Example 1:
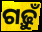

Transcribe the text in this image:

ଗଢ଼ୁଁ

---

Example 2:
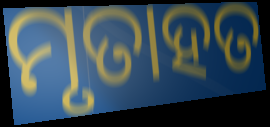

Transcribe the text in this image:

ମୃତାହତ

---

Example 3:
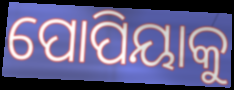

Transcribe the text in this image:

ପୋପିୟାକୁ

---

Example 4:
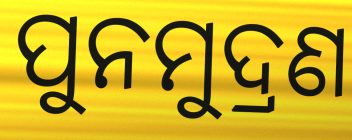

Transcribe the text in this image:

ପୁନମୁଦ୍ରଣ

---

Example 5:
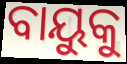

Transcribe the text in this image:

ବାୟୁକୁ